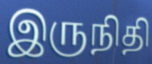
இருநிதி